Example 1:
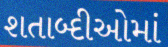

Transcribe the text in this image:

શતાબ્દીઓમાં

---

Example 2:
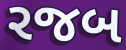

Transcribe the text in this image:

રજબ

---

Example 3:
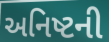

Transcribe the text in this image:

અનિષ્ટની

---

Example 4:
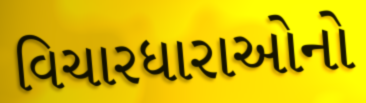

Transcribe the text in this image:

વિચારધારાઓનો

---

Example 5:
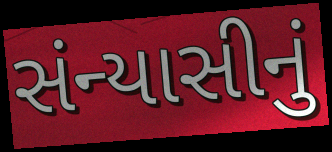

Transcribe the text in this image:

સંન્યાસીનું